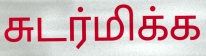
சுடர்மிக்க